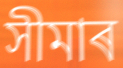
সীমাৰ